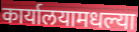
कार्यालयामधल्या